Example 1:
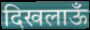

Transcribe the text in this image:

दिखलाऊँ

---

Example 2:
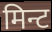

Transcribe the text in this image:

मिन्ट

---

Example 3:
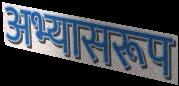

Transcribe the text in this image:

अभ्यासरूप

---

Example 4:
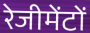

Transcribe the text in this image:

रेजीमेंटों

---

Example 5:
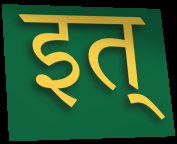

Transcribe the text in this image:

इत्